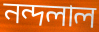
নন্দলাল